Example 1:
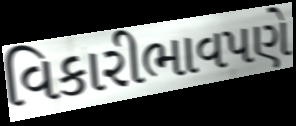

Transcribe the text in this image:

વિકારીભાવપણે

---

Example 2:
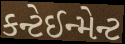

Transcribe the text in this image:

કન્ટેઈન્મેન્ટ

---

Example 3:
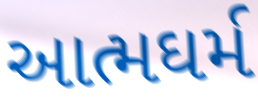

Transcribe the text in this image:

આત્મઘર્મ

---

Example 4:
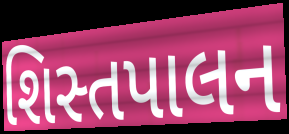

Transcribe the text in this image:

શિસ્તપાલન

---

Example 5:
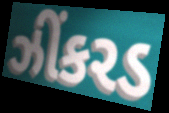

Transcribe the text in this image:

ઝીંકરડ